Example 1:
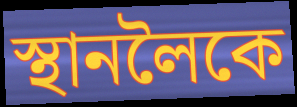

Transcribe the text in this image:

স্থানলৈকে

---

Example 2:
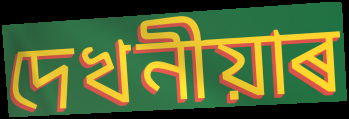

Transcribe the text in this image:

দেখনীয়াৰ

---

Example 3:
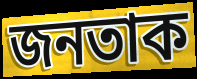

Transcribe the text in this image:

জনতাক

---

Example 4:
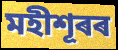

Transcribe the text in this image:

মহীশূৰৰ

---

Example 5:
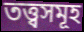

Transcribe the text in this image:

তত্ত্বসমূহ